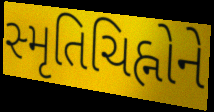
સ્મૃતિચિહ્નોને